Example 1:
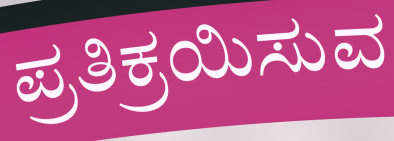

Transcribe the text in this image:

ಪ್ರತಿಕ್ರಯಿಸುವ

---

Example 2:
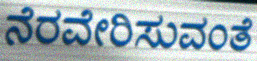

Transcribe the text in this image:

ನೆರವೇರಿಸುವಂತೆ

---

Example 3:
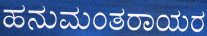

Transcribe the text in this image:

ಹನುಮಂತರಾಯರ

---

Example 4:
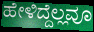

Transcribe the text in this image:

ಹೇಳಿದ್ದೆಲ್ಲವೂ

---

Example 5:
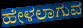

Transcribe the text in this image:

ಹೇಳಲಾಗುವ